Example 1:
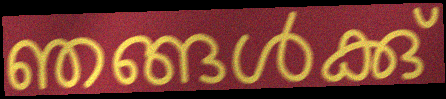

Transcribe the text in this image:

ഞങ്ങൾക്കു്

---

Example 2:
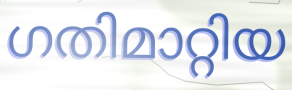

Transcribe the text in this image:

ഗതിമാറ്റിയ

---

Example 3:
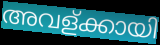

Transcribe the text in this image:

അവള്ക്കായി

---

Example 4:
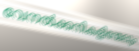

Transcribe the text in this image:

വേനൽക്കനികളിന്മേലും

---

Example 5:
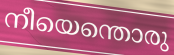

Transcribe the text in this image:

നീയെന്തൊരു